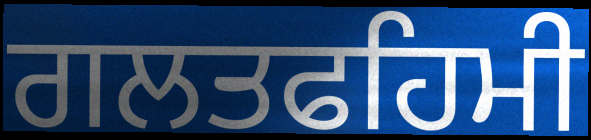
ਗਲਤਫਹਿਮੀ